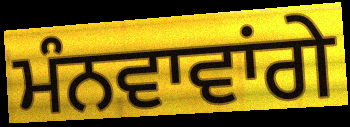
ਮੰਨਵਾਵਾਂਗੇ